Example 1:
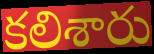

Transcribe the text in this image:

కలిశారు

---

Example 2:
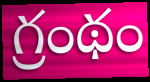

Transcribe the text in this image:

గ్రంథం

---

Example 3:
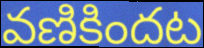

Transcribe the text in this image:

వణికిందట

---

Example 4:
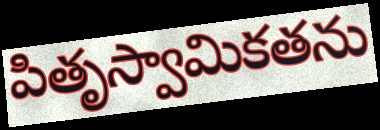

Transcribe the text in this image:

పితృస్వామికతను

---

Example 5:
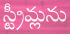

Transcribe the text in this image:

స్ట్రీమ్లను